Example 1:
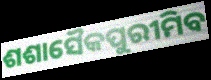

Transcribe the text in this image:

ଶଶାସୈକପୁରୀମିବ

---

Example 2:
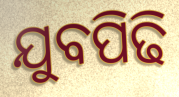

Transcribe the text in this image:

ଯୁବପିଢି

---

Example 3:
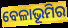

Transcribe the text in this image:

ବେଳାଭୂମିର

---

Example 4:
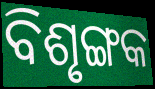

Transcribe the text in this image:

ବିଶୃଙ୍ଗକ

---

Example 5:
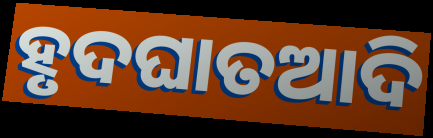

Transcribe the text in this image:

ହୃଦଘାତଆଦି